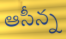
ఆసీన్న